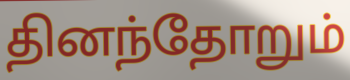
தினந்தோறும்